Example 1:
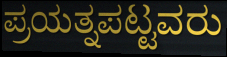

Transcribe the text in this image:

ಪ್ರಯತ್ನಪಟ್ಟವರು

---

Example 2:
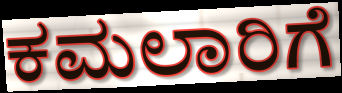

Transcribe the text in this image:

ಕಮಲಾರಿಗೆ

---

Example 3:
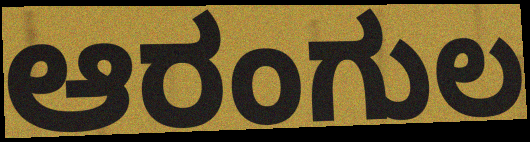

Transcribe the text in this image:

ಆರಂಗುಲ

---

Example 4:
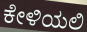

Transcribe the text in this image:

ಕೇಳಿಯಲಿ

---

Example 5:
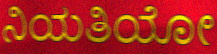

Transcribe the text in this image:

ನಿಯತಿಯೋ